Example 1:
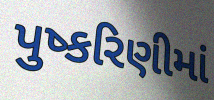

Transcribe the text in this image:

પુષ્કરિણીમાં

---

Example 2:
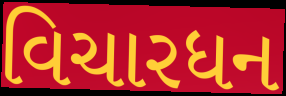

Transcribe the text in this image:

વિચારધન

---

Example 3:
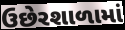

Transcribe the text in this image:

ઉછેરશાળામાં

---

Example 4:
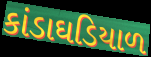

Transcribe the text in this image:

કાંડાઘડિયાળ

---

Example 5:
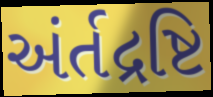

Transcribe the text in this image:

અંર્તદ્રષ્ટિ